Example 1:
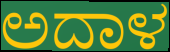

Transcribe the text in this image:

ಅದಾಳ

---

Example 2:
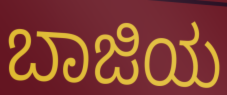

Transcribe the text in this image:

ಬಾಜಿಯ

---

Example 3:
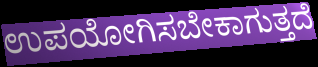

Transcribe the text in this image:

ಉಪಯೋಗಿಸಬೇಕಾಗುತ್ತದೆ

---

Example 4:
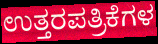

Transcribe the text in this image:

ಉತ್ತರಪತ್ರಿಕೆಗಳ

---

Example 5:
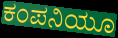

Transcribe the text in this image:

ಕಂಪನಿಯೂ